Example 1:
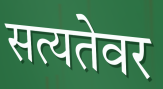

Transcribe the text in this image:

सत्यतेवर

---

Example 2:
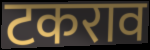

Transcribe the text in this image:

टकराव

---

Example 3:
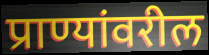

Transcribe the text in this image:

प्राण्यांवरील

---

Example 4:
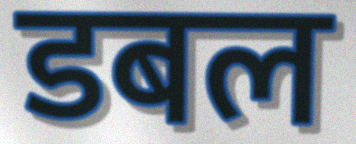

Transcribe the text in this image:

डबल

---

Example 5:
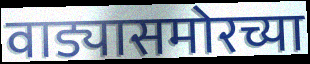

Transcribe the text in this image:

वाड्यासमोरच्या